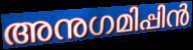
അനുഗമിപ്പിൻ